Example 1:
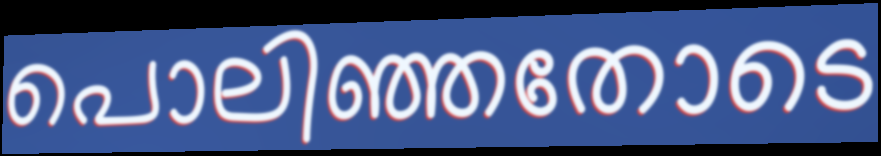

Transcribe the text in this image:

പൊലിഞ്ഞതോടെ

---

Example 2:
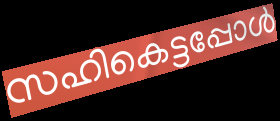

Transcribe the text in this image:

സഹികെട്ടപ്പോൾ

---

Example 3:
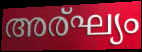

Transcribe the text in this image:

അര്ഘ്യം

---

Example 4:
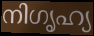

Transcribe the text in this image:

നിഗൃഹ്യ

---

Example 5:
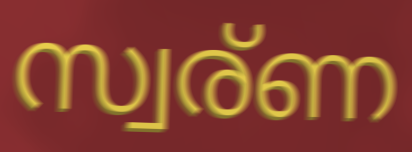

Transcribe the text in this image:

സ്വര്ണ